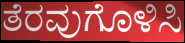
ತೆರವುಗೊಳಿಸಿ